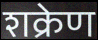
शक्रेण